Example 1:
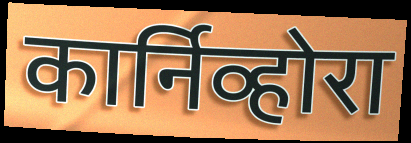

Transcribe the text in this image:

कार्निव्होरा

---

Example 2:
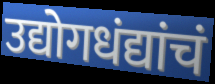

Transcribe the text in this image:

उद्योगधंद्यांचं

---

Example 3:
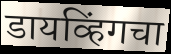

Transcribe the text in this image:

डायव्हिंगचा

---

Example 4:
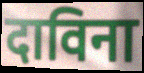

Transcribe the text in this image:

दाविना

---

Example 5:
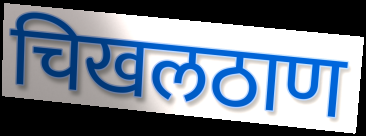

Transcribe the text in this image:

चिखलठाण